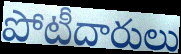
పోటీదారులు